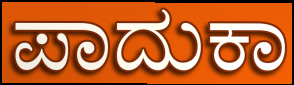
ಪಾದುಕಾ